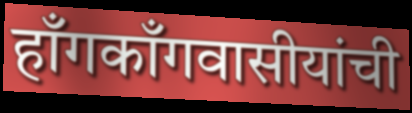
हाँगकाँगवासीयांची